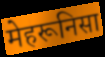
मेहरूनिसा